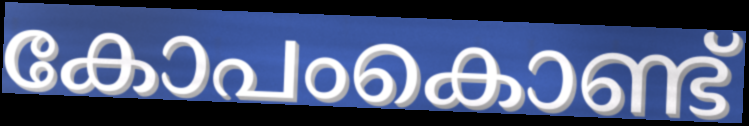
കോപംകൊണ്ട്